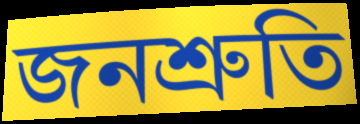
জনশ্রুতি